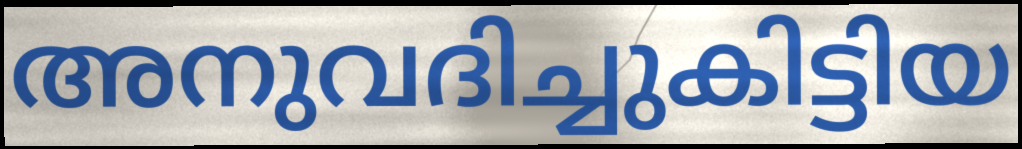
അനുവദിച്ചുകിട്ടിയ